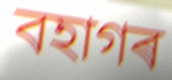
বহাগৰ